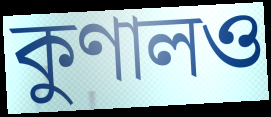
কুণালও